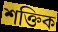
শক্তিক